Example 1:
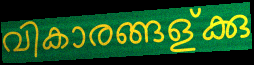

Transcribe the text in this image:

വികാരങ്ങള്ക്കു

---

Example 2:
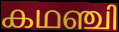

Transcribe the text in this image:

കഥഞ്ചി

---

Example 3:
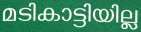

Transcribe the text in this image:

മടികാട്ടിയില്ല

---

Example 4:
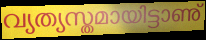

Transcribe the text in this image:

വ്യത്യസ്തമായിട്ടാണു്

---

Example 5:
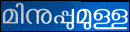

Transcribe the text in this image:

മിനുപ്പുമുള്ള